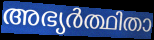
അഭ്യർത്ഥിതാ